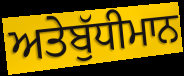
ਅਤੇਬੁੱਧੀਮਾਨ